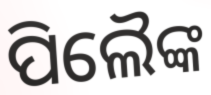
ପିଲୈଙ୍କ